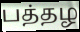
பத்தழ